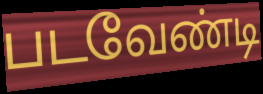
படவேண்டி